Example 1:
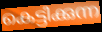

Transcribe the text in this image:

കെട്ടിക്കുന്ന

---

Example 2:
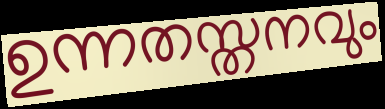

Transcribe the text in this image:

ഉന്നതസ്തനവും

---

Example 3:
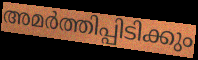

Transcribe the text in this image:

അമർത്തിപ്പിടിക്കും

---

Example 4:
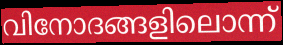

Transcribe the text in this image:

വിനോദങ്ങളിലൊന്ന്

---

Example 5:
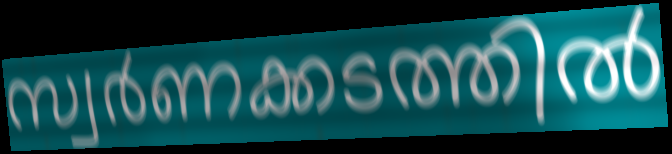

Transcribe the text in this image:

സ്വർണക്കടത്തിൽ